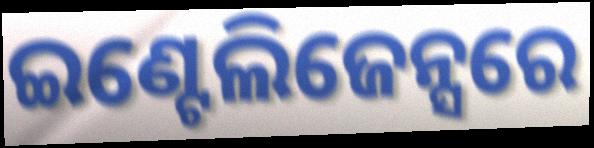
ଇଣ୍ଟେଲିଜେନ୍ସରେ